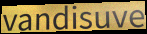
vandisuve